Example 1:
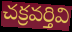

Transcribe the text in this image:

చక్రవర్తివి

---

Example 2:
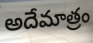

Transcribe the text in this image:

అదేమాత్రం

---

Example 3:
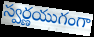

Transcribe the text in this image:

స్వర్ణయుగంగా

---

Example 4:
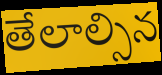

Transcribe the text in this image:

తేలాల్సిన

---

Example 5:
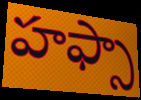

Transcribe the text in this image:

హఫ్సా